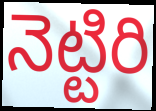
నెట్టిరి